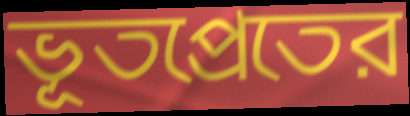
ভূতপ্রেতের